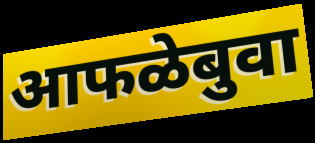
आफळेबुवा